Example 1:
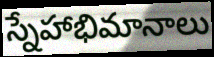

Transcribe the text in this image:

స్నేహాభిమానాలు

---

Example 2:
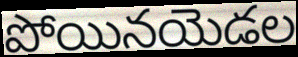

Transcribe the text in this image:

పోయినయెడల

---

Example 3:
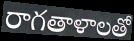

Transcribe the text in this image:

రాగతాళాలతో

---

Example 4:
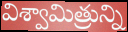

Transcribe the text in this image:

విశ్వామిత్రున్ని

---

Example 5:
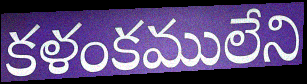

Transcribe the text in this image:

కళంకములేని